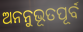
ଅନନୁଭୂତପୂର୍ବ